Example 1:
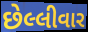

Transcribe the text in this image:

છેલ્લીવાર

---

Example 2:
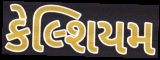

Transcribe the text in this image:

કેલ્શિયમ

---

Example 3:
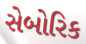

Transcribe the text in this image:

સેબોરિક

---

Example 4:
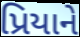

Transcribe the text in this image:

પ્રિયાને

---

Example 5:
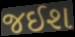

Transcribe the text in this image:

જઈશ